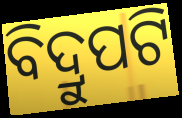
ବିଦ୍ରୁପଟି